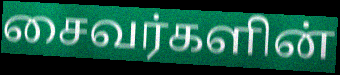
சைவர்களின்